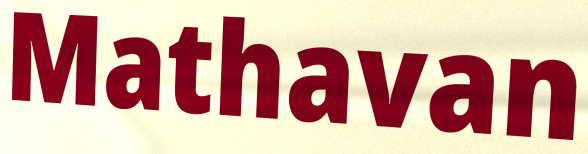
Mathavan